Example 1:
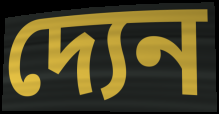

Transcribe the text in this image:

দ্যেন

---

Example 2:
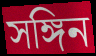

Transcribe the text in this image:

সঙ্গিন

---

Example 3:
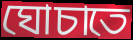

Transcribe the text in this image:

ঘোচাতে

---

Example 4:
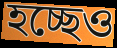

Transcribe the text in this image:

হচ্ছেও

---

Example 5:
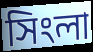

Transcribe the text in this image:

সিংলা